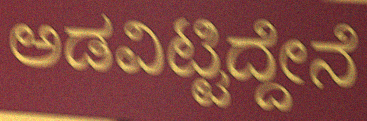
ಅಡವಿಟ್ಟಿದ್ದೇನೆ